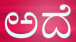
ಅದೆ